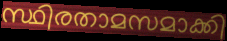
സ്ഥിരതാമസമാക്കി